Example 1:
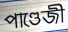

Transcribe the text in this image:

পাণ্ডেজী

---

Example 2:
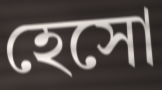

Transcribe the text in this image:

হেসো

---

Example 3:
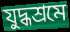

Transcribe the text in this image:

যুদ্ধশ্রমে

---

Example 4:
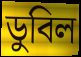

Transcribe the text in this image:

ডুবিল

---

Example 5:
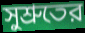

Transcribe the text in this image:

সুশ্রুতের